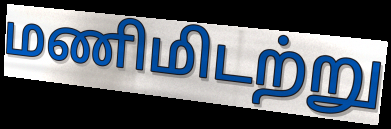
மணிமிடற்று